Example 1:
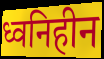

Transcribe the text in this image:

ध्वनिहीन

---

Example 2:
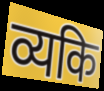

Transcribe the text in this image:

व्यकि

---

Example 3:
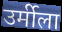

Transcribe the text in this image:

उर्मीला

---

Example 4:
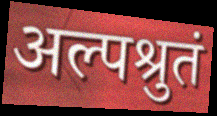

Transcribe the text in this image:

अल्पश्रुतं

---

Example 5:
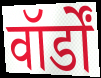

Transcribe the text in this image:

वॉर्डों